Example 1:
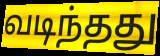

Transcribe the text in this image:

வடிந்தது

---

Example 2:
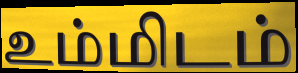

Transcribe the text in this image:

உம்மிடம்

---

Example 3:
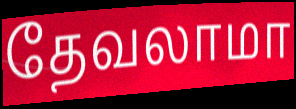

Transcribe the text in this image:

தேவலாமா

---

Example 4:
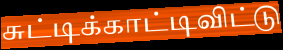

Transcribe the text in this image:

சுட்டிக்காட்டிவிட்டு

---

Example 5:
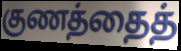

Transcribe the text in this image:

குணத்தைத்